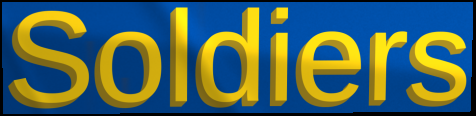
Soldiers